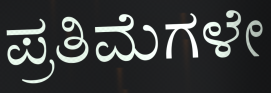
ಪ್ರತಿಮೆಗಳೇ